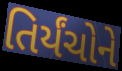
તિર્યંચોને